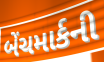
બેંચમાર્કની